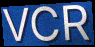
VCR